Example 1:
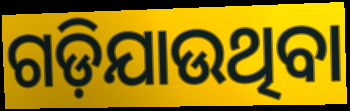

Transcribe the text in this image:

ଗଡ଼ିଯାଉଥିବା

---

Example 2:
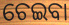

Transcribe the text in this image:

ଚେଇବା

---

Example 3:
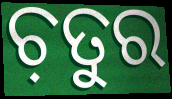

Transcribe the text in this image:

ଚ଼ତୁର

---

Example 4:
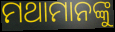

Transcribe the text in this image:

ମଥାମାନଙ୍କୁ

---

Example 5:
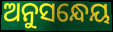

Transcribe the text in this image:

ଅନୁସନ୍ଧେୟ